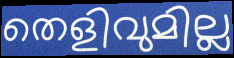
തെളിവുമില്ല